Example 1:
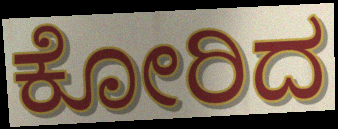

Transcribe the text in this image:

ಕೋರಿದ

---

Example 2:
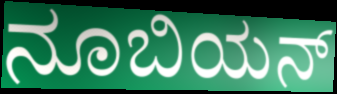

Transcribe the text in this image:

ನೂಬಿಯನ್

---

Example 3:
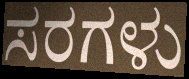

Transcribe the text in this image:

ಸರಗಳು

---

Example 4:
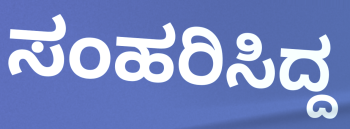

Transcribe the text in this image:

ಸಂಹರಿಸಿದ್ದ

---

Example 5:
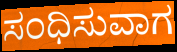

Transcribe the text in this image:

ಸಂಧಿಸುವಾಗ